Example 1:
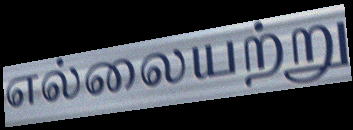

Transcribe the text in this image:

எல்லையற்று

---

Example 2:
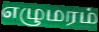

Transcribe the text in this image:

எழுமரம்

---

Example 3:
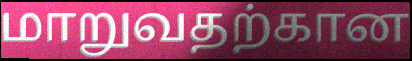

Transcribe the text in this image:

மாறுவதற்கான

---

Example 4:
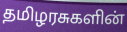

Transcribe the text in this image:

தமிழரசுகளின்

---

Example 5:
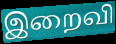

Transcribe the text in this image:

இறைவி